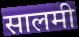
सालमी